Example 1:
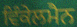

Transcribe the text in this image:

ਵਿੰਕੇਲਮੈਨ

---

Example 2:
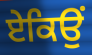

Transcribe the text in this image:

ਏਕਿਉਂ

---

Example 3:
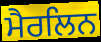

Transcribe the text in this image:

ਮੈਰਲਿਨ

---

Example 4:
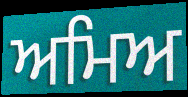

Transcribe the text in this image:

ਅਮਿਅ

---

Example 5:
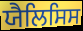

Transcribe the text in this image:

ਯੈਲਿਸਿਸ